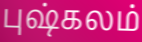
புஷ்கலம்